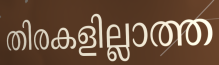
തിരകളില്ലാത്ത